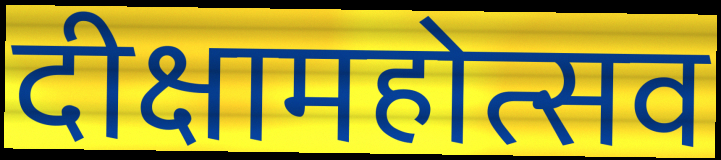
दीक्षामहोत्सव